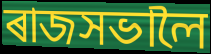
ৰাজসভালৈ